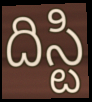
దిస్టి